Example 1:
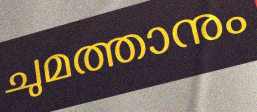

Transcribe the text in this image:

ചുമത്താനും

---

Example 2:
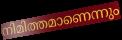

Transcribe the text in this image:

നിമിത്തമാണെന്നും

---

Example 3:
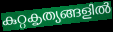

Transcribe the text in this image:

കുറ്റകൃത്യങ്ങളിൽ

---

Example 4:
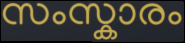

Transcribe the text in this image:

സംസ്കാരം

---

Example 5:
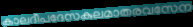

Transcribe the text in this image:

കാലദീപദേസകുലമാതരവസേന